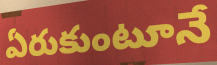
ఏరుకుంటూనే